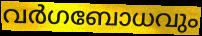
വർഗബോധവും